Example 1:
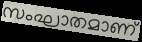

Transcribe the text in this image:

സംഘാതമാണ്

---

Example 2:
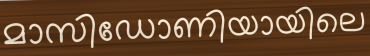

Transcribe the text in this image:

മാസിഡോണിയായിലെ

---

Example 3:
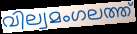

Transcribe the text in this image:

വില്വമംഗലത്ത്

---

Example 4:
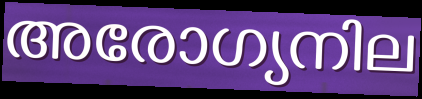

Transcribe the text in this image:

അരോഗ്യനില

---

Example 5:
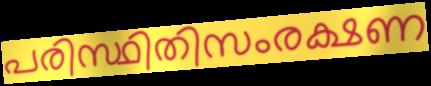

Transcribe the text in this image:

പരിസ്ഥിതിസംരക്ഷണ